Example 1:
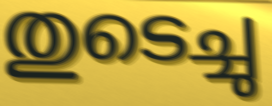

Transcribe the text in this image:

തുടെച്ചു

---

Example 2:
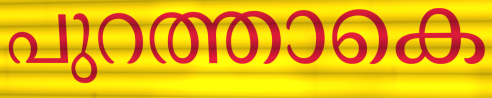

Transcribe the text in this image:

പുറത്താകെ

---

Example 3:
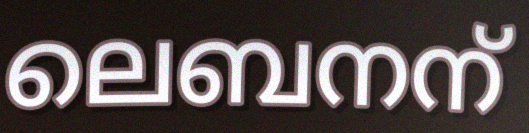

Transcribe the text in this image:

ലെബനന്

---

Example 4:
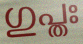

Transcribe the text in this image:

ഗുപ്തഃ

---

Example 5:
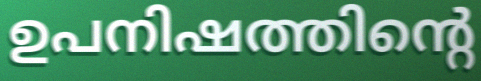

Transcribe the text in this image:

ഉപനിഷത്തിന്റെ